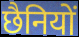
छैनियों